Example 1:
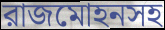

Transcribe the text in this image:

রাজমোহনসহ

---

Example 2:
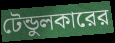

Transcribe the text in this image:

টেন্ডুলকারের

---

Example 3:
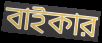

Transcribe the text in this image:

বাইকার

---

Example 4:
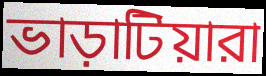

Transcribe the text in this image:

ভাড়াটিয়ারা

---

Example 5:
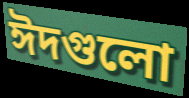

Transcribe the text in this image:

ঈদগুলো